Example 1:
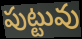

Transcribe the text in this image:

పుట్టువు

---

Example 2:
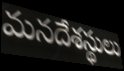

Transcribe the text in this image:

మనదేశస్థులు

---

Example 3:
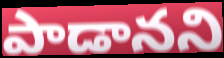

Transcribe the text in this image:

పాడానని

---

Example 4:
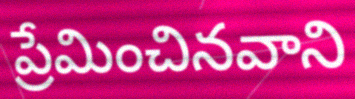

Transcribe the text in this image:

ప్రేమించినవాని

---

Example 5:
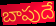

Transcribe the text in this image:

బాపుదే